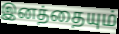
இனத்தையும்